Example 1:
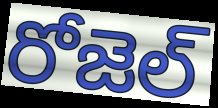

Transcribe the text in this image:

రోజెల్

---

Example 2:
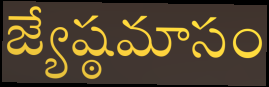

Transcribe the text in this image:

జ్యేష్ఠమాసం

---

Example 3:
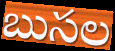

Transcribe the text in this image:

బుసల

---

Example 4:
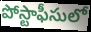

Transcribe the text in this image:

పోస్టాఫీసులో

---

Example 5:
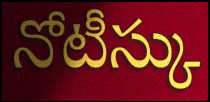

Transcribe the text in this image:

నోటీస్కు